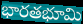
భారతభూమి